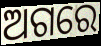
ଅଗରେ